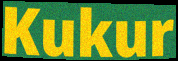
Kukur